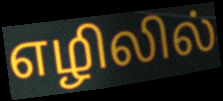
எழிலில்